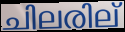
ചിലരില്